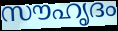
സൗഹൃദം